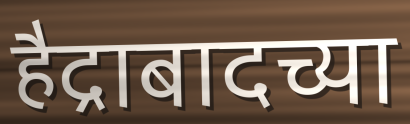
हैद्राबादच्या